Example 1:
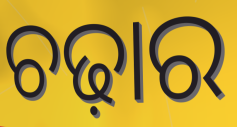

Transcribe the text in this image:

ଚଢ଼ାର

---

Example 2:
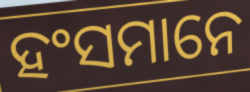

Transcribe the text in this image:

ହଂସମାନେ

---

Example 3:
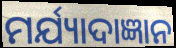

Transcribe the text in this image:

ମର୍ଯ୍ୟାଦାଜ୍ଞାନ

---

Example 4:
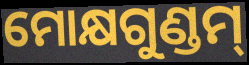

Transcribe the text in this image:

ମୋକ୍ଷଗୁଣ୍ଡମ୍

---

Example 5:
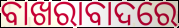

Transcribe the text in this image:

ବାଖରାବାଦରେ